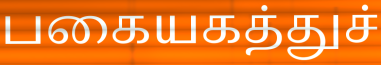
பகையகத்துச்